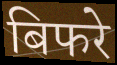
बिफरे